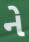
ને